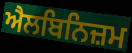
ਐਲਬਿਨਿਜ਼ਮ